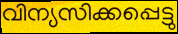
വിന്യസിക്കപ്പെട്ടു